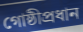
গোষ্ঠীপ্রধান